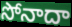
సోనాదా